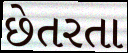
છેતરતા